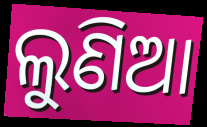
ଲୁଣିଆ